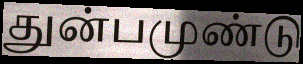
துன்பமுண்டு